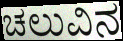
ಚಲುವಿನ